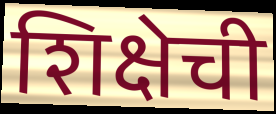
शिक्षेची